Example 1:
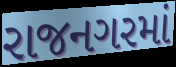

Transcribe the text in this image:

રાજનગરમાં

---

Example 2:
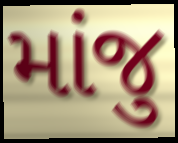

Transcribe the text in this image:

માંજુ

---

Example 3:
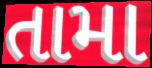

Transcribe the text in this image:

તામા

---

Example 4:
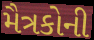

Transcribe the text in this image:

મૈત્રકોની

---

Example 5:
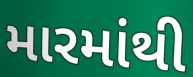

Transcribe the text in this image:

મારમાંથી